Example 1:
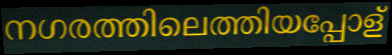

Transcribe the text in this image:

നഗരത്തിലെത്തിയപ്പോള്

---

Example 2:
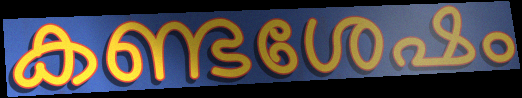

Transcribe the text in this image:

കണ്ടശേഷം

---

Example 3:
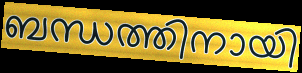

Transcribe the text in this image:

ബന്ധത്തിനായി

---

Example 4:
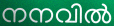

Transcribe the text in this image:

നനവിൽ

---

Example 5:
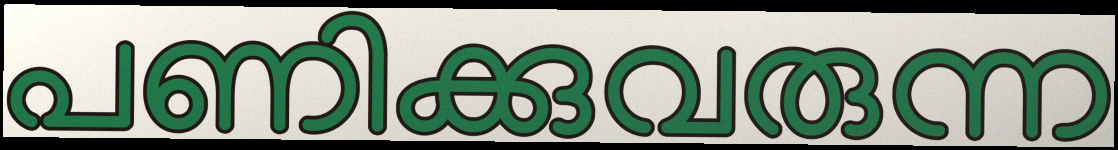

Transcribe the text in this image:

പണിക്കുവരുന്ന